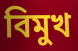
বিমুখ